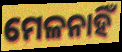
ମେଳନାହିଁ